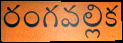
రంగవల్లిక